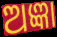
ଅଜ୍ଞା